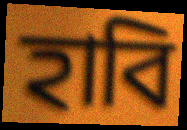
হাবি